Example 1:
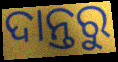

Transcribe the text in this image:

ଦାନ୍ତରୁ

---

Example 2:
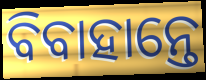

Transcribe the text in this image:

ବିବାହାନ୍ତେ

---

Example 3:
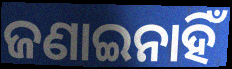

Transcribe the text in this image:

ଜଣାଇନାହିଁ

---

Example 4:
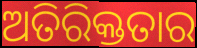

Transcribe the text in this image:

ଅତିରିକ୍ତତାର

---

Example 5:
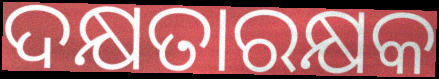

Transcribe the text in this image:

ଦକ୍ଷତାରକ୍ଷକ